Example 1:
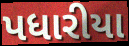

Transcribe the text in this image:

પધારીયા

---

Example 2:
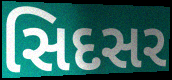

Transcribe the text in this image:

સિદસર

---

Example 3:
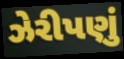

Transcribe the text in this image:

ઝેરીપણું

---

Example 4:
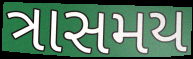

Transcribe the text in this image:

ત્રાસમય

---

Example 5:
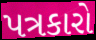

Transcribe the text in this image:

પત્રકારો